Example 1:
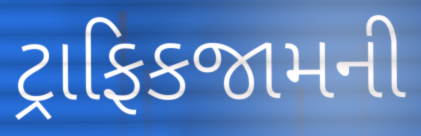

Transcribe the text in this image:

ટ્રાફિકજામની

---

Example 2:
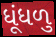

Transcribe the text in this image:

ધૂંધળુ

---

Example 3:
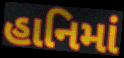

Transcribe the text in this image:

હાનિમાં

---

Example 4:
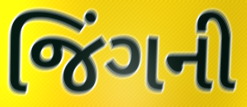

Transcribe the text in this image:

જિંગની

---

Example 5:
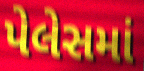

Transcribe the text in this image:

પેલેસમાં